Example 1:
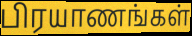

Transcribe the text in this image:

பிரயாணங்கள்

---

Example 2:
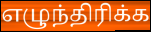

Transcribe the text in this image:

எழுந்திரிக்க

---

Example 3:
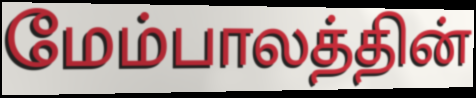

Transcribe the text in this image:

மேம்பாலத்தின்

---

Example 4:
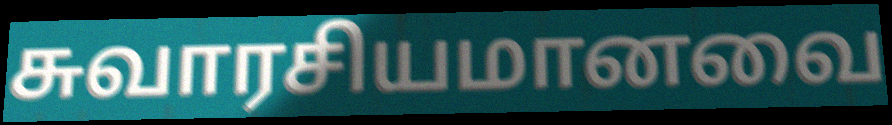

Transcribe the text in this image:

சுவாரசியமானவை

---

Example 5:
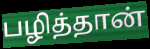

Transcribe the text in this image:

பழித்தான்